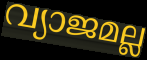
വ്യാജമല്ല